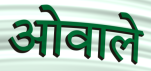
ओवाले